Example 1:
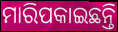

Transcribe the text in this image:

ମାରିପକାଇଛନ୍ତି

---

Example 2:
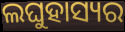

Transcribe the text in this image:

ଲଘୁହାସ୍ୟର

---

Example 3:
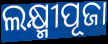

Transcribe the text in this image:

ଲକ୍ଷ୍ମୀପୂଜା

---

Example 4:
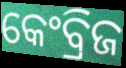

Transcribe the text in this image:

କେଂବ୍ରିଜ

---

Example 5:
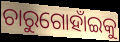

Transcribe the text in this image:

ଚାରୁଗୋହାଁଇକୁ